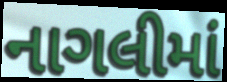
નાગલીમાં